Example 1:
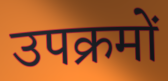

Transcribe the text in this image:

उपक्रमों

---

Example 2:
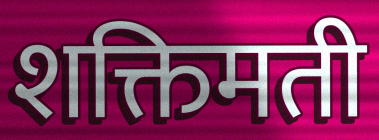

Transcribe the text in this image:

शक्तिमती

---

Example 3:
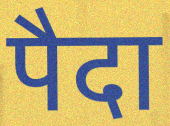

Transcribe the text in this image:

पैदा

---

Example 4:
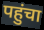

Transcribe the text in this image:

पहुंचा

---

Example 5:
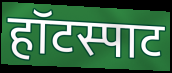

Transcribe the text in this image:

हॉटस्पाट